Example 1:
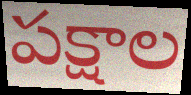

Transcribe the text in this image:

పక్షాల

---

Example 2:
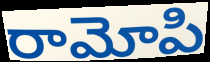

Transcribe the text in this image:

రామోపి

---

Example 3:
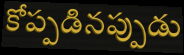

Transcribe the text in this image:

కోప్పడినప్పుడు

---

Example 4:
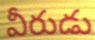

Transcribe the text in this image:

వీరుడు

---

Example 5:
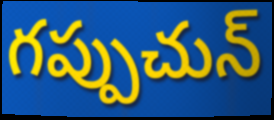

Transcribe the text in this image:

గప్పుచున్